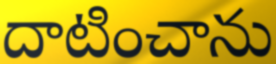
దాటించాను